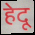
हेदू